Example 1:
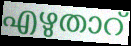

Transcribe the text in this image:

എഴുതാറ്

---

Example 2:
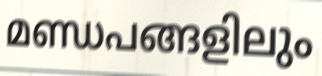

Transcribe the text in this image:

മണ്ഡപങ്ങളിലും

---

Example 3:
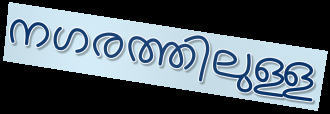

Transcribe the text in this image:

നഗരത്തിലുള്ള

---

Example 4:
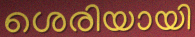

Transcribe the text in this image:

ശെരിയായി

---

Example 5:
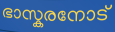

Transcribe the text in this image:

ഭാസ്കരനോട്